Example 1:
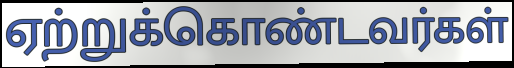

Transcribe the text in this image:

ஏற்றுக்கொண்டவர்கள்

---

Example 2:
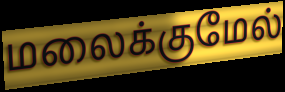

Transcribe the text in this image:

மலைக்குமேல்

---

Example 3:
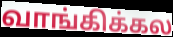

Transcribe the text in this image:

வாங்கிக்கல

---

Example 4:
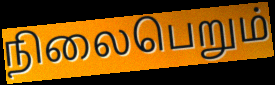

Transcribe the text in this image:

நிலைபெறும்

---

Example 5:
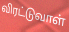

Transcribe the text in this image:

விரட்டுவாள்